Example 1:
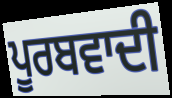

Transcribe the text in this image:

ਪੂਰਬਵਾਦੀ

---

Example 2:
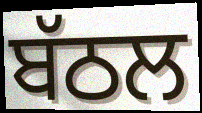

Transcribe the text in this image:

ਬੱਠਲ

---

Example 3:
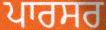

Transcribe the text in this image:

ਪਾਰਸਰ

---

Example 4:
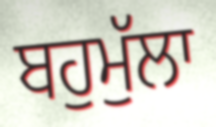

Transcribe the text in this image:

ਬਹੁਮੁੱਲਾ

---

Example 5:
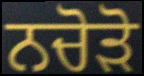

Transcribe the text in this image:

ਨਚੋੜੋ